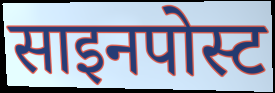
साइनपोस्ट